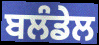
ਬਲੰਡੇਲ